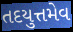
તદયુત્તમેવ